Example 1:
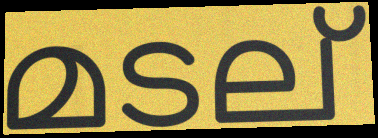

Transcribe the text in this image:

മടല്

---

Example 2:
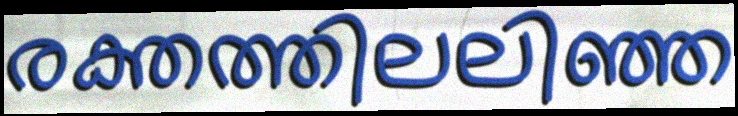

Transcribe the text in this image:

രക്തത്തിലലിഞ്ഞ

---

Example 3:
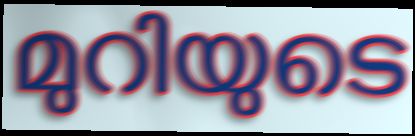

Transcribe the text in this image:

മുറിയുടെ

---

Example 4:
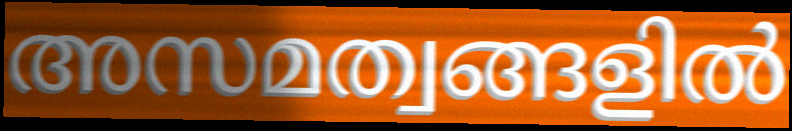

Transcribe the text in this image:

അസമത്വങ്ങളിൽ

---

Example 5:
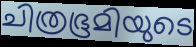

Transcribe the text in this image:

ചിത്രഭൂമിയുടെ